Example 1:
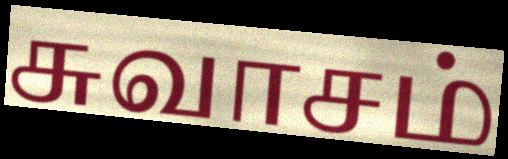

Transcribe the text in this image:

சுவாசம்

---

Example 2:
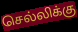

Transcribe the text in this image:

செல்லிக்கு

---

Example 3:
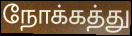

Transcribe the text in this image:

நோக்கத்து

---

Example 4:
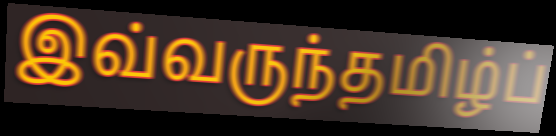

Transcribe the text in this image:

இவ்வருந்தமிழ்ப்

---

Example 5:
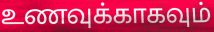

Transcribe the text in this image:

உணவுக்காகவும்